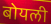
बोयली